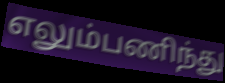
எலும்பணிந்து